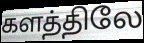
களத்திலே